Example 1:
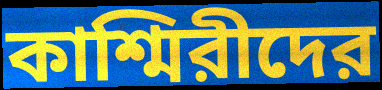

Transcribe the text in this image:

কাশ্মিরীদের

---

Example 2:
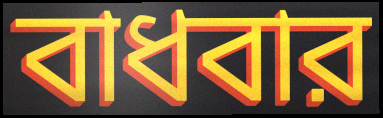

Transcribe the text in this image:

বাধবার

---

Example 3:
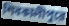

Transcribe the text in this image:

শিবকালীপুরে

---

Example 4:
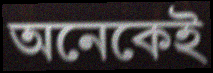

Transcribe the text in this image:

অনেকেই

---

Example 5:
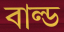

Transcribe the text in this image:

বাল্ড